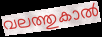
വലത്തുകാൽ